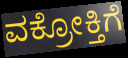
ವಕ್ರೋಕ್ತಿಗೆ